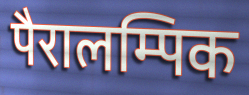
पैरालम्पिक